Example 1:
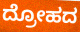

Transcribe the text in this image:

ದ್ರೋಹದ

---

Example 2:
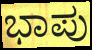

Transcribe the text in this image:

ಭಾಪು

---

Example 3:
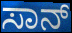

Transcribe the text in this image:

ಸಾನ್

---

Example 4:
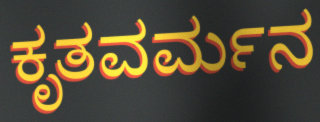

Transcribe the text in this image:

ಕೃತವರ್ಮನ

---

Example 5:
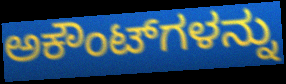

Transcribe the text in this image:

ಅಕೌಂಟ್‌ಗಳನ್ನು